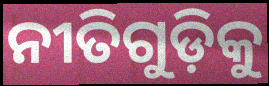
ନୀତିଗୁଡ଼ିକୁ